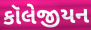
કૉલેજીયન